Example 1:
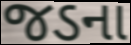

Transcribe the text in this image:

જડના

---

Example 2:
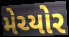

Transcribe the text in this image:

મેચ્યોર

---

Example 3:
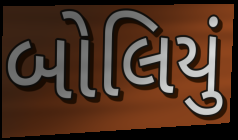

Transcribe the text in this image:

બોલિયું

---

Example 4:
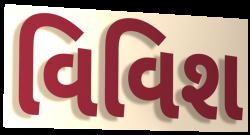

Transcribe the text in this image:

વિવિશ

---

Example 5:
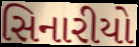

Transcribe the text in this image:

સિનારીયો